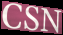
CSN